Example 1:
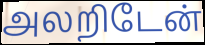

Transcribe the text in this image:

அலறிடேன்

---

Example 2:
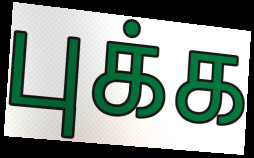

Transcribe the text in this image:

புக்க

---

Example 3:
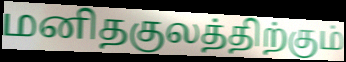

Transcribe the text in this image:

மனிதகுலத்திற்கும்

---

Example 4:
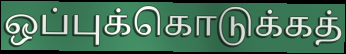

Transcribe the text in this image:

ஒப்புக்கொடுக்கத்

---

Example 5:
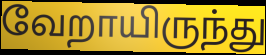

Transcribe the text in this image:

வேறாயிருந்து